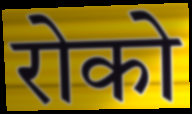
रोको